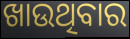
ଖାଉଥିବାର